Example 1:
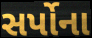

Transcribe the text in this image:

સર્પોના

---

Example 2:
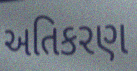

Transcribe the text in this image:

અતિકરણ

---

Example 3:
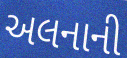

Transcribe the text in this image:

અલનાની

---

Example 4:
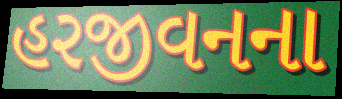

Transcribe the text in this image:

હરજીવનના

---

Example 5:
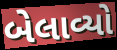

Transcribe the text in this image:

બેલાવ્યો